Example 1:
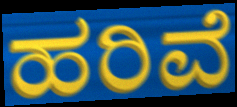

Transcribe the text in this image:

ಹರಿವೆ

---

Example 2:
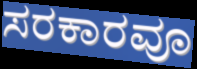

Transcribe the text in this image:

ಸರಕಾರವೂ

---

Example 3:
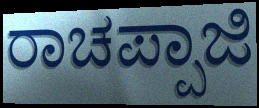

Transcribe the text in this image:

ರಾಚಪ್ಪಾಜಿ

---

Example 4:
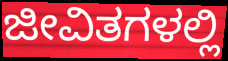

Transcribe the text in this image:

ಜೀವಿತಗಳಲ್ಲಿ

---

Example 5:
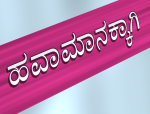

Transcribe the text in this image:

ಹವಾಮಾನಕ್ಕಾಗಿ